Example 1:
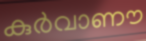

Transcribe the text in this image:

കുർവാണൗ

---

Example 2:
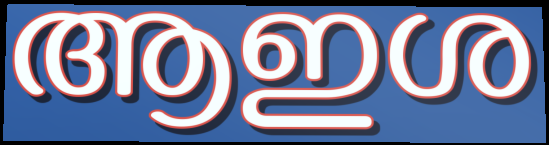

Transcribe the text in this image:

ആഇശ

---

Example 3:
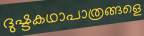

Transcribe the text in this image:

ദുഷ്ടകഥാപാത്രങ്ങളെ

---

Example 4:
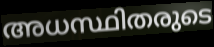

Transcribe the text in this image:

അധസ്ഥിതരുടെ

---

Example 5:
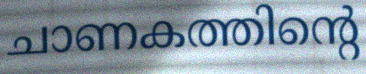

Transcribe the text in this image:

ചാണകത്തിന്റെ